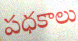
పధకాలు